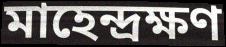
মাহেন্দ্রক্ষণ